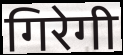
गिरेगी